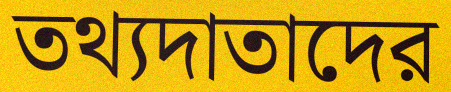
তথ্যদাতাদের